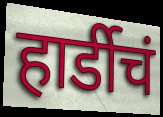
हार्डीचं